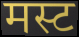
मस्ट